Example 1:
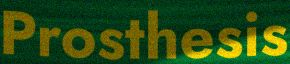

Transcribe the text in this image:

Prosthesis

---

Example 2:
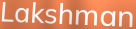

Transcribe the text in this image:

Lakshman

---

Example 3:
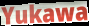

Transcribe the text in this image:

Yukawa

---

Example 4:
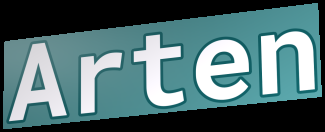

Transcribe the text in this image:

Arten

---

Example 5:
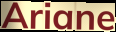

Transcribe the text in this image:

Ariane